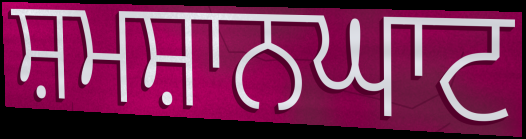
ਸ਼ਮਸ਼ਾਨਘਾਟ